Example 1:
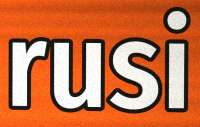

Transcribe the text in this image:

rusi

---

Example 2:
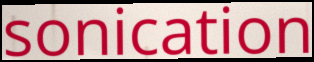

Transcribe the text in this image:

sonication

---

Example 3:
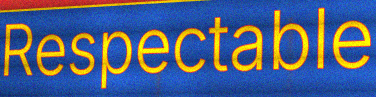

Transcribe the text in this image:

Respectable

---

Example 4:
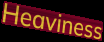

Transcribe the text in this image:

Heaviness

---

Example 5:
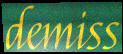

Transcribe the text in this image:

demiss